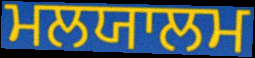
ਮਲਯਾਲਮ